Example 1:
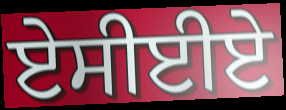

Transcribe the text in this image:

ਏਸੀਈਏ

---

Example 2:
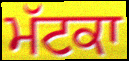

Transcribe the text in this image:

ਮੱਟਕਾ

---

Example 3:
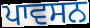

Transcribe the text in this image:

ਪਾਵਸਨ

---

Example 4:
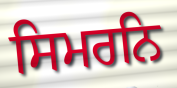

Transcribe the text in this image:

ਸਿਮਰਨਿ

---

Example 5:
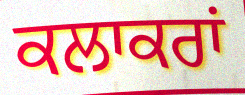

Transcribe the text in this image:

ਕਲਾਕਰਾਂ